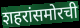
शहरांसमोरची